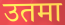
उतमा